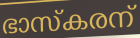
ഭാസ്‌കരന്